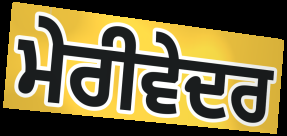
ਮੇਰੀਵੇਦਰ